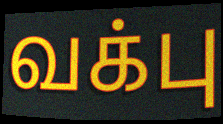
வக்பு